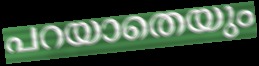
പറയാതെയും